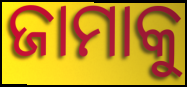
ଜାମାକୁ